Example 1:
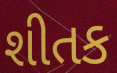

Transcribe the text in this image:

શીતક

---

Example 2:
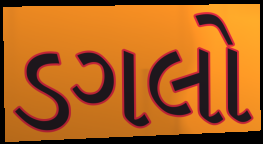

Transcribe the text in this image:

ડગલો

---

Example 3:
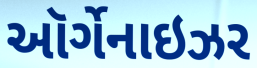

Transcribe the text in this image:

ઑર્ગેનાઇઝર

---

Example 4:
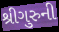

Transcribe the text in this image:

શ્રીગુરુની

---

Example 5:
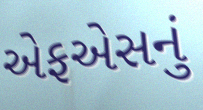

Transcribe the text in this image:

એફએસનું